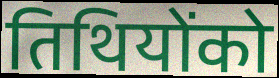
तिथियोंको